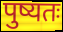
पुष्यतः